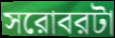
সরোবরটা